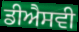
ਡੀਐਸਵੀ